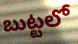
బుట్టలో